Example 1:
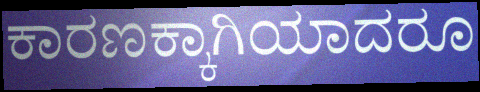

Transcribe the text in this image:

ಕಾರಣಕ್ಕಾಗಿಯಾದರೂ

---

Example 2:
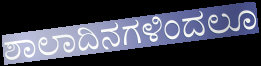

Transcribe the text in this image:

ಶಾಲಾದಿನಗಳಿಂದಲೂ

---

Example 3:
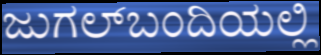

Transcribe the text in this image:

ಜುಗಲ್‌ಬಂದಿಯಲ್ಲಿ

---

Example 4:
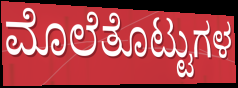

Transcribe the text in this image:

ಮೊಲೆತೊಟ್ಟುಗಳ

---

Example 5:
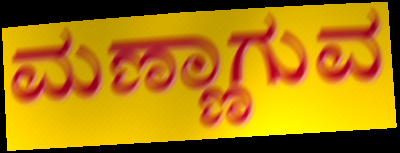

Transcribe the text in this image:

ಮಣ್ಣಾಗುವ